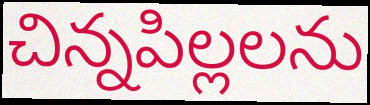
చిన్నపిల్లలను